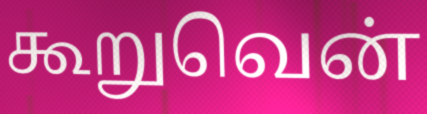
கூறுவென்